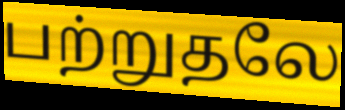
பற்றுதலே